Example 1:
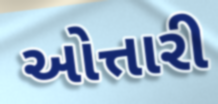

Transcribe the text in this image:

ઓત્તારી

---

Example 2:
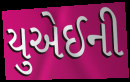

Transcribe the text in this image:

યુએઈની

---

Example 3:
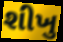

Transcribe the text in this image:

શીખુ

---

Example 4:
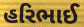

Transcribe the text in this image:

હરિભાઈ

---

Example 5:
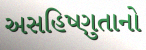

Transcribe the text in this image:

અસહિષ્ણુતાનો